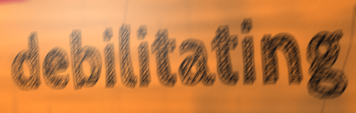
debilitating